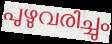
പുഴുവരിച്ചും